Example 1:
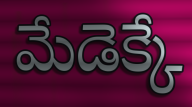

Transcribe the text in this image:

మేడెక్కే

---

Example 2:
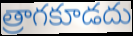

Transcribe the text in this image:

త్రాగకూడదు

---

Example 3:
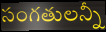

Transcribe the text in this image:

సంగతులన్నీ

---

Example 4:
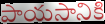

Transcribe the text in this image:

పాయసానికి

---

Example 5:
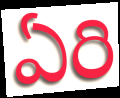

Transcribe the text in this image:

ఏరి